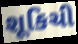
શૂકિચી